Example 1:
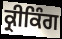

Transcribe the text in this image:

ਕ੍ਰੀਕਿੰਗ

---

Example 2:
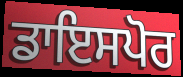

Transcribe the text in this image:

ਡਾਇਸਪੋਰ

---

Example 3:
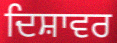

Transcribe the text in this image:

ਦਿਸ਼ਾਵਰ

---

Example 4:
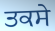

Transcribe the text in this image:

ਤਕਸੇ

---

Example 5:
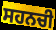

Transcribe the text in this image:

ਸਹਨਚੀ